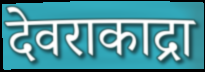
देवराकाद्रा